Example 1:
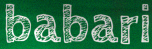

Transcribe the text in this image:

babari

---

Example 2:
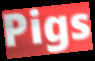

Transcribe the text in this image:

Pigs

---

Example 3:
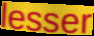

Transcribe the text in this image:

lesser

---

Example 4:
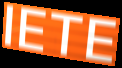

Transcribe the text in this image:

IETE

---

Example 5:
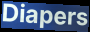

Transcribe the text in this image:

Diapers